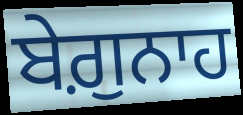
ਬੇਗ਼ੁਨਾਹ